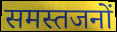
समस्तजनों